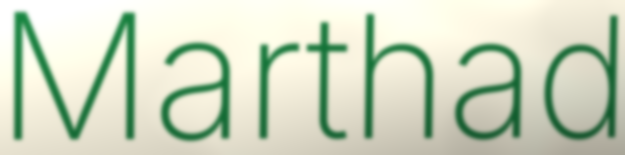
Marthad